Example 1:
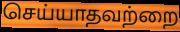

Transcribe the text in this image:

செய்யாதவற்றை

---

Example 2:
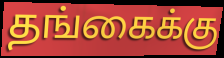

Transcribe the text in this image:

தங்கைக்கு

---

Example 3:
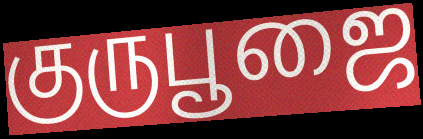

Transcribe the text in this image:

குருபூஜை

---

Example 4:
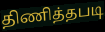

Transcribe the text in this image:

திணித்தபடி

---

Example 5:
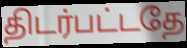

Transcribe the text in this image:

திடர்பட்டதே